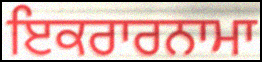
ਇਕਰਾਰਨਾਮਾ